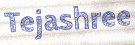
Tejashree